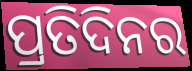
ପ୍ରତିଦିନର